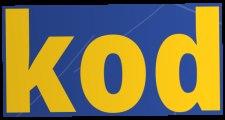
kod